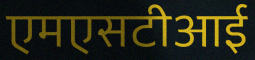
एमएसटीआई